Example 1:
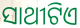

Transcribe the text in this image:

ସାଥୀଟିଏ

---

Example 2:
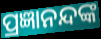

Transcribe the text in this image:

ପ୍ରଜ୍ଞାନନ୍ଦଙ୍କ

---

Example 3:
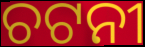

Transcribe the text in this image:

ଚଟନୀ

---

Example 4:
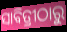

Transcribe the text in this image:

ସାବିତ୍ରୀଠାରୁ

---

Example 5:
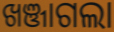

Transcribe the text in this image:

ଖଞ୍ଜାଗଲା